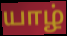
யாழ்